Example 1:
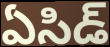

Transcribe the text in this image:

ఏసిడ్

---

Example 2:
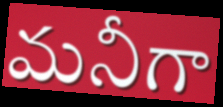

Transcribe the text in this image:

మనీగా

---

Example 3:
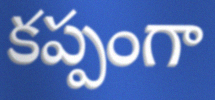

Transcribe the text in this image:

కప్పంగా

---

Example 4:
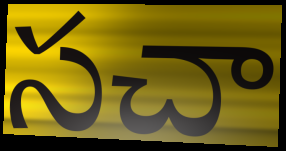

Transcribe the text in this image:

సచా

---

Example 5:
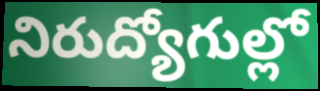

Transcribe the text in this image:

నిరుద్యోగుల్లో